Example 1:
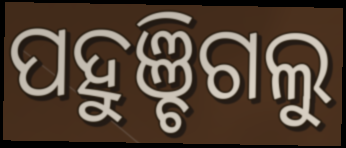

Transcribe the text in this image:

ପହୁଞ୍ଚିଗଲୁ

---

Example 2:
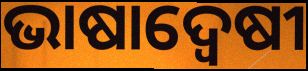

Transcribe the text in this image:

ଭାଷାଦ୍ଵେଷୀ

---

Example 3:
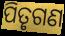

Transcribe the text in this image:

ପିତୃଗଣ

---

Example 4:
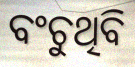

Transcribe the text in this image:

ବଂଚୁଥିବି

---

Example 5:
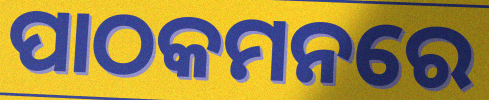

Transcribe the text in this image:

ପାଠକମନରେ